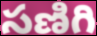
సణిగి